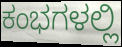
ಕಂಭಗಳಲ್ಲಿ